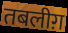
तबलीग़